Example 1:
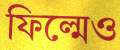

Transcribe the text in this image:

ফিল্মেও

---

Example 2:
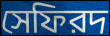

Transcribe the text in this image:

সেফিরদ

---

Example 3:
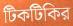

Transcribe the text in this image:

টিকটিকির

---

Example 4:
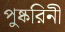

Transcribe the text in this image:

পুষ্করিনী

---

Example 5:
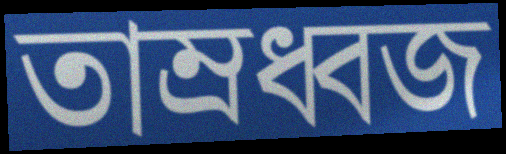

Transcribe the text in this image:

তাম্রধ্বজ